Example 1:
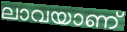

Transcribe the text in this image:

ലാവയാണ്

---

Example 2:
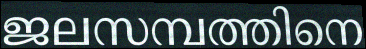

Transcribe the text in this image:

ജലസമ്പത്തിനെ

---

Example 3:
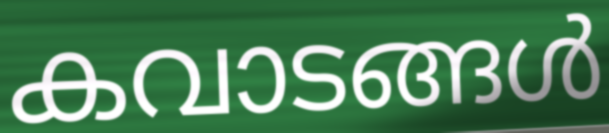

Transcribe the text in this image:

കവാടങ്ങൾ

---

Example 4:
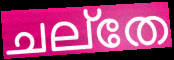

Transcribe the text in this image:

ചല്തേ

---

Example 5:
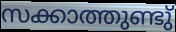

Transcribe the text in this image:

സക്കാത്തുണ്ടു്